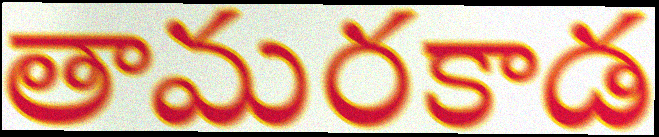
తామరకాడ